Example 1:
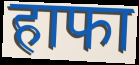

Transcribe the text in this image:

हाफा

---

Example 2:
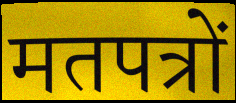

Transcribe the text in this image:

मतपत्रों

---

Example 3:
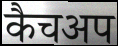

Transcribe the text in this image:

कैचअप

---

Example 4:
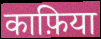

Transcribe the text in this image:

काफ़िया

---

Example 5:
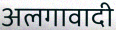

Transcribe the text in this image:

अलगावादी